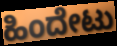
ಹಿಂದೇಟು